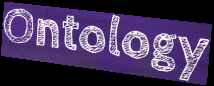
Ontology